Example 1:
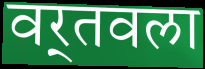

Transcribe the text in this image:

वर्तवला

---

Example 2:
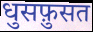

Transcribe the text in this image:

धुसफ़ुसत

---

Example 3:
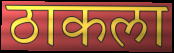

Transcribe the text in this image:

ठाकला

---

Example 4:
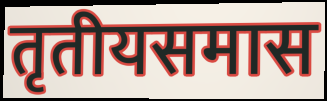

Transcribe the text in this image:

तृतीयसमास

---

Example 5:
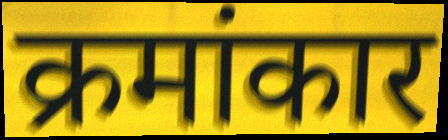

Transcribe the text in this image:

क्रमांकार